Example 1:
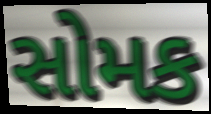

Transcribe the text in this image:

સોમક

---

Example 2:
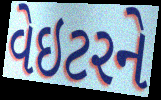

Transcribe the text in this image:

વેઇટરને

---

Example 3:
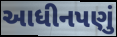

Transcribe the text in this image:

આધીનપણું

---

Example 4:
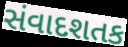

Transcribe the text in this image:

સંવાદશતક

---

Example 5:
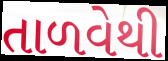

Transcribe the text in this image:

તાળવેથી